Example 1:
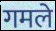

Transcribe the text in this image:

गमले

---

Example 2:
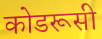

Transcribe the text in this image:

कोडरूसी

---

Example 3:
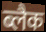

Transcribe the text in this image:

ब्‍लैक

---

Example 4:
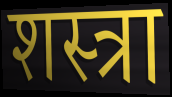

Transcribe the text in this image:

शस्त्रा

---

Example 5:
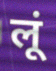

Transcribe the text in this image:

लूं